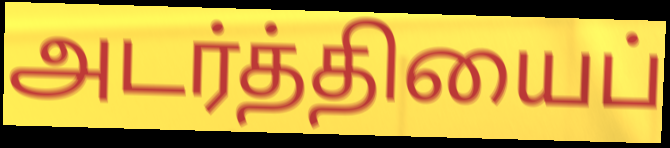
அடர்த்தியைப்